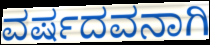
ವರ್ಷದವನಾಗಿ